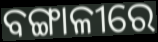
ବଙ୍ଗାଳୀରେ